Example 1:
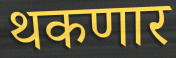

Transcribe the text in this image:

थकणार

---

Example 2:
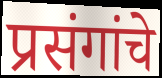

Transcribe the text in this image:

प्रसंगांचे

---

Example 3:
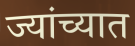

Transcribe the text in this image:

ज्यांच्यात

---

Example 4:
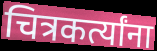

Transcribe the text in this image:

चित्रकर्त्यांना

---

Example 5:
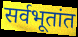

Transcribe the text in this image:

सर्वभूतांत